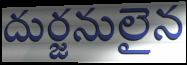
దుర్జనులైన